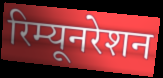
रिम्यूनरेशन